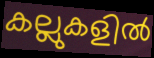
കല്ലുകളിൽ